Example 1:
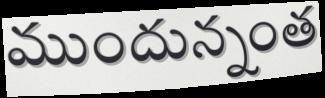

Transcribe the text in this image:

ముందున్నంత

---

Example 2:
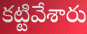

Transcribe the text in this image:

కట్టివేశారు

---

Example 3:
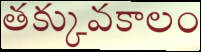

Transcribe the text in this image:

తక్కువకాలం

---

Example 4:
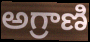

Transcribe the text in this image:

అగ్రాణి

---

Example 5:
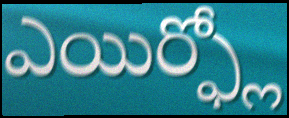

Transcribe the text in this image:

ఎయిర్ఫ్లో